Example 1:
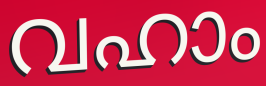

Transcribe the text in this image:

വഹാം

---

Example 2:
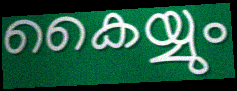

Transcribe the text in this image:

കൈയ്യും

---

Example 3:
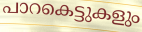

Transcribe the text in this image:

പാറകെട്ടുകളും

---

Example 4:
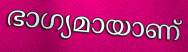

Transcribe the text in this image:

ഭാഗ്യമായാണ്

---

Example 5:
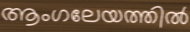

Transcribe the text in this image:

ആംഗലേയത്തിൽ